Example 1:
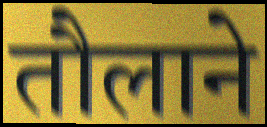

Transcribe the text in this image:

तौलाने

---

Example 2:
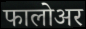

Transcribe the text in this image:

फालोअर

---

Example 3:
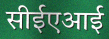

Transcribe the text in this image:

सीईएआई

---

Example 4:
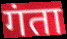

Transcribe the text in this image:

गंता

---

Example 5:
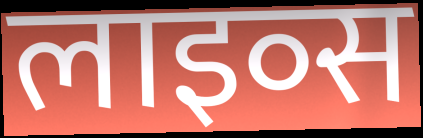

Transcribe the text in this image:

लाइव्स